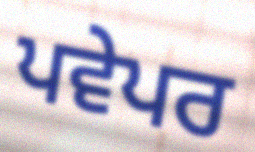
ਪਵੇਪਰ